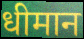
धीमान